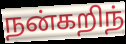
நன்கறிந்